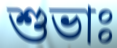
শুভাঃ